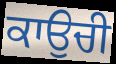
ਕਾਉਚੀ